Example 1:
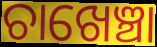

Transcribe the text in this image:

ଚାଖେଞ୍ଚା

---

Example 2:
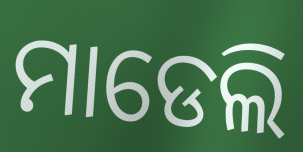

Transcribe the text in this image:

ମାଡେଲି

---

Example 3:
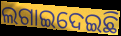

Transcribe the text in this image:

ଲଗାଇଦେଇଛି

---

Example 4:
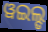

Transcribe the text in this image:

ୱଇଲ୍ଡ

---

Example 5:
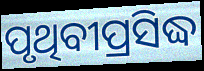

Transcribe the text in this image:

ପୃଥିବୀପ୍ରସିଦ୍ଧ